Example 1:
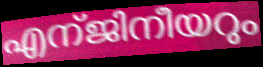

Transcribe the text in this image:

എന്ജിനീയറും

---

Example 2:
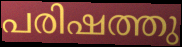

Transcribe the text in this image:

പരിഷത്തു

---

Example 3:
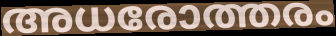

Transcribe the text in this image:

അധരോത്തരം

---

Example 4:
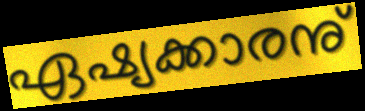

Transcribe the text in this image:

ഏഷ്യക്കാരനു്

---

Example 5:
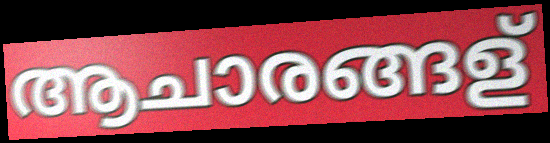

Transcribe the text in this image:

ആചാരങ്ങള്